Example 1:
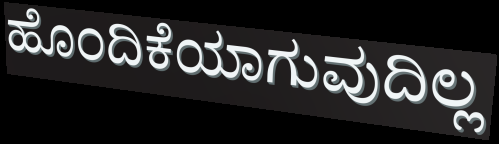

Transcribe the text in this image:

ಹೊಂದಿಕೆಯಾಗುವುದಿಲ್ಲ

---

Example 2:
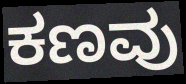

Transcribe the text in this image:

ಕಣವು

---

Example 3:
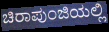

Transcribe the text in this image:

ಚಿರಾಪುಂಜಿಯಲ್ಲಿ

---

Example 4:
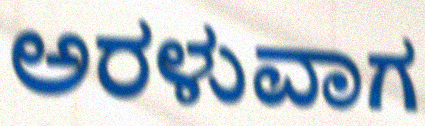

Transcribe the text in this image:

ಅರಳುವಾಗ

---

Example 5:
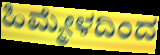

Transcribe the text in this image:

ಹಿಮ್ಮೇಳದಿಂದ